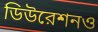
ডিউরেশনও